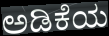
ಅಡಿಕೆಯ